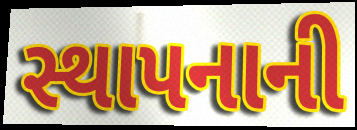
સ્થાપનાની